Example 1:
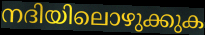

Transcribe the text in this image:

നദിയിലൊഴുക്കുക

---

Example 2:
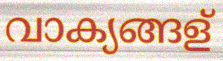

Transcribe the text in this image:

വാക്യങ്ങള്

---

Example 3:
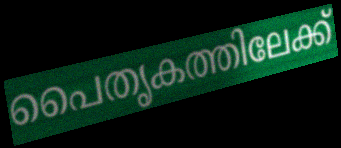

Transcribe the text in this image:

പൈതൃകത്തിലേക്ക്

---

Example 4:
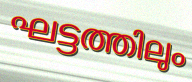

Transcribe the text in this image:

ഘട്ടത്തിലും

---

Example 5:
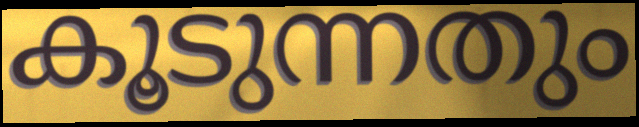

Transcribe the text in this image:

കൂടുന്നതും